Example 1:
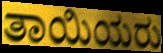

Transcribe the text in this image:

ತಾಯಿಯರು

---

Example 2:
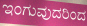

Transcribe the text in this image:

ಇಂಗುವುದರಿಂದ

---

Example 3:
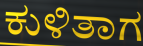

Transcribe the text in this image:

ಕುಳಿತಾಗ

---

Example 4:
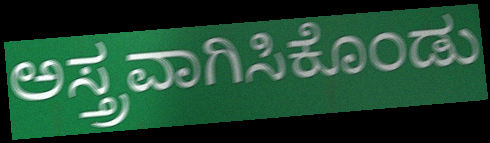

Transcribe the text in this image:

ಅಸ್ತ್ರವಾಗಿಸಿಕೊಂಡು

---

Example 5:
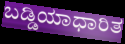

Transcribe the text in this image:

ಬಡ್ಡಿಯಾಧಾರಿತ